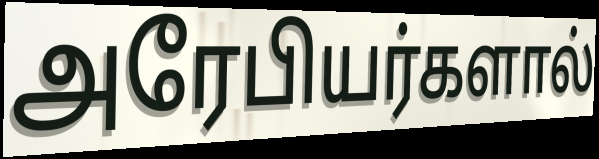
அரேபியர்களால்